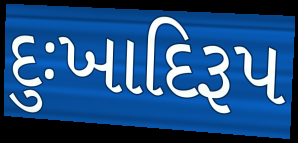
દુઃખાદિરૂપ